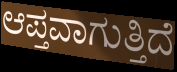
ಆಪ್ತವಾಗುತ್ತಿದೆ